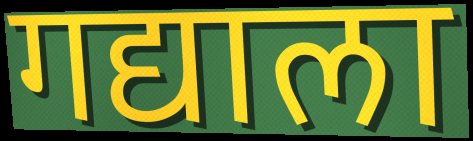
गद्याला